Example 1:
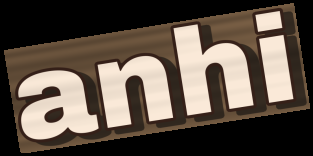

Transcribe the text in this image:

anhi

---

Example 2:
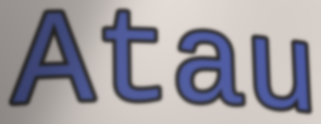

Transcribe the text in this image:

Atau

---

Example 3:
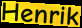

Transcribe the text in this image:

Henrik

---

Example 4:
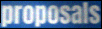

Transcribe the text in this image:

proposals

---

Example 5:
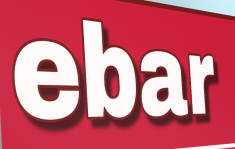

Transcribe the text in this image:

ebar